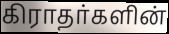
கிராதர்களின்